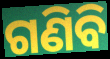
ଗଣିବି